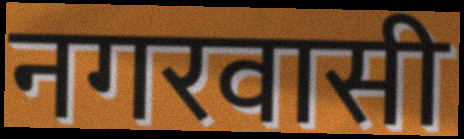
नगरवासी